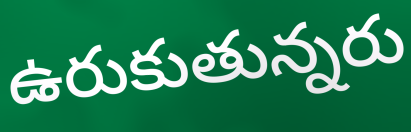
ఉరుకుతున్నరు